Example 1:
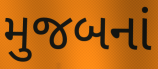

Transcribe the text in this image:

મુજબનાં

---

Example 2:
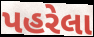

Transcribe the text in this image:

પહરેલા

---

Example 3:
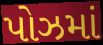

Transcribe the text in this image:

પોઝમાં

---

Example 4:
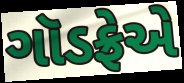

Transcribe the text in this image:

ગૉડફ્રેએ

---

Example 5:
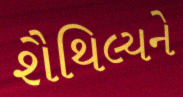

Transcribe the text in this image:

શૈથિલ્યને